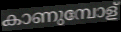
കാണുമ്പോള്